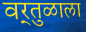
वर्तुळाला